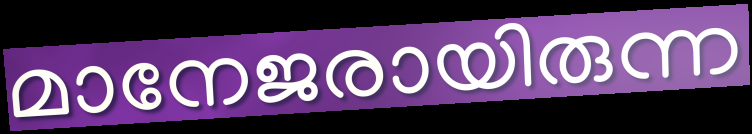
മാനേജരായിരുന്ന